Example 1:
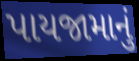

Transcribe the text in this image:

પાયજામાનું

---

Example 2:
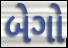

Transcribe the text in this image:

બેગો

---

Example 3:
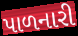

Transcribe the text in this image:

પાળનારી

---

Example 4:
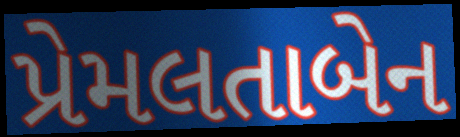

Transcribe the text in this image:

પ્રેમલતાબેન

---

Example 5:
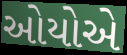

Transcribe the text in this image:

ઓયોએ